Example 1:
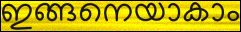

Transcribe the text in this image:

ഇങ്ങനെയാകാം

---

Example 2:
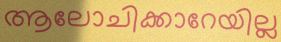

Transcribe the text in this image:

ആലോചിക്കാറേയില്ല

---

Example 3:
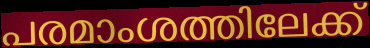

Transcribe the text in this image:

പരമാംശത്തിലേക്ക്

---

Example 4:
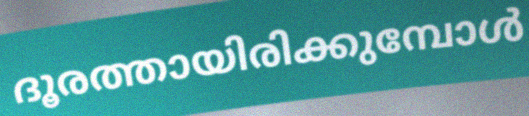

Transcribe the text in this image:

ദൂരത്തായിരിക്കുമ്പോൾ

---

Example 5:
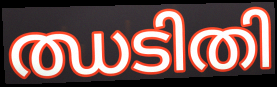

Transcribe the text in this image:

ഝടിതി